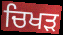
ਚਿਖੜ